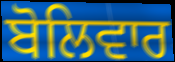
ਬੋਲਿਵਾਰ